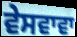
ਵੇਸਵਾਵਾ